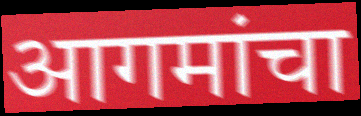
आगमांचा